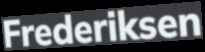
Frederiksen